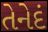
તેનેદં